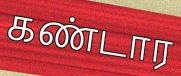
கண்டார